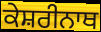
ਕੇਸ਼ਰੀਨਾਥ